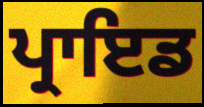
ਪ੍ਰਾਇਡ